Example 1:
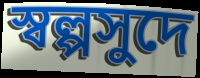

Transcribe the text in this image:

স্বল্পসুদে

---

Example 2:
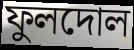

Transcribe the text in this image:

ফুলদোল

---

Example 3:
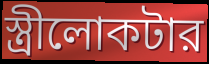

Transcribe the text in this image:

স্ত্রীলোকটার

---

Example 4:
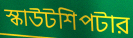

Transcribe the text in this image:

স্কাউটশিপটার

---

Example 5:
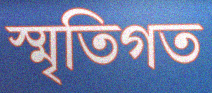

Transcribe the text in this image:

স্মৃতিগত